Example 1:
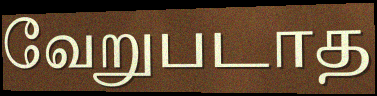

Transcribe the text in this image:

வேறுபடாத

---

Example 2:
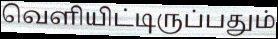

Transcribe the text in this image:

வெளியிட்டிருப்பதும்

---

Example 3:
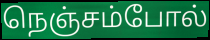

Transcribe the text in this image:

நெஞ்சம்போல்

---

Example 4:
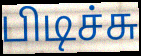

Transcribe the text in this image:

பிடிச்சு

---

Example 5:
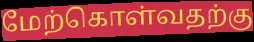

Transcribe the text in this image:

மேற்கொள்வதற்கு